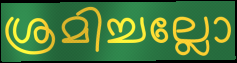
ശ്രമിച്ചല്ലോ